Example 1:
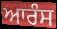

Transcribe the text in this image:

ਆਰੰਸ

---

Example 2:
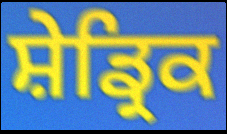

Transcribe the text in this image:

ਸ਼ੇਡ੍ਰਿਕ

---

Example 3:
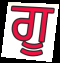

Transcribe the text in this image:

ਗੂ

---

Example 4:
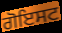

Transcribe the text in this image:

ਗੋਇਸਟ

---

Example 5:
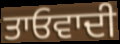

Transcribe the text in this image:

ਤਾਓਵਾਦੀ